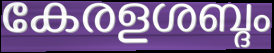
കേരളശബ്ദം